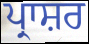
ਪ੍ਰਾਸ਼ਰ